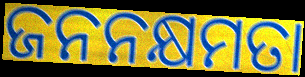
ଜନନକ୍ଷମତା